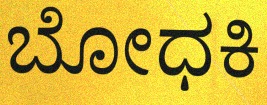
ಬೋಧಕಿ